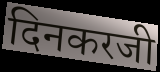
दिनकरजी